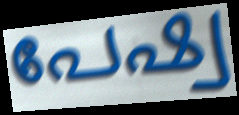
പേഷ്വ